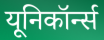
यूनिकॉर्न्स